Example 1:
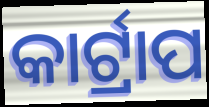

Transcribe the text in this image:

କାର୍ଟ୍ରାପ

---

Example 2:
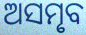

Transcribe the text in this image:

ଅସମୃବ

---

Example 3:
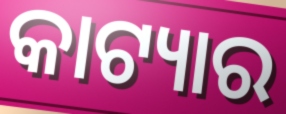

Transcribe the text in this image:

କାଟ୍ୟାର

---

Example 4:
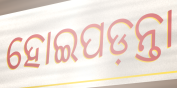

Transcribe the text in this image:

ହୋଇପଡ଼ନ୍ତା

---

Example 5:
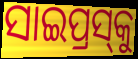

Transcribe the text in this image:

ସାଇପ୍ରସ୍‌କୁ